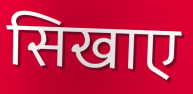
सिखाए